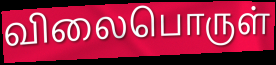
விலைபொருள்